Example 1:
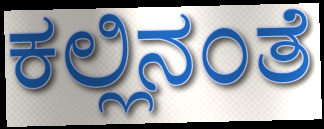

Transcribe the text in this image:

ಕಲ್ಲಿನಂತೆ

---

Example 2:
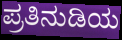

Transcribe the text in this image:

ಪ್ರತಿನುಡಿಯ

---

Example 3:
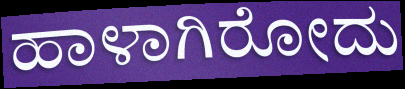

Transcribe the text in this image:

ಹಾಳಾಗಿರೋದು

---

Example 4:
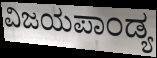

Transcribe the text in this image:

ವಿಜಯಪಾಂಡ್ಯ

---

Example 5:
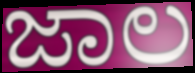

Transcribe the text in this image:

ಜಾಲ